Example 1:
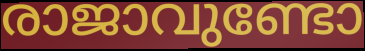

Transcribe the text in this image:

രാജാവുണ്ടോ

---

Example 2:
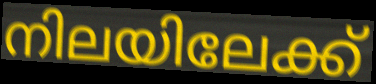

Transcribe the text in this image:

നിലയിലേക്ക്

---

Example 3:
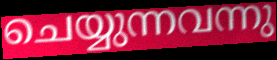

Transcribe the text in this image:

ചെയ്യുന്നവന്നു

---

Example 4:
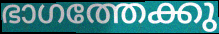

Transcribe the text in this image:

ഭാഗത്തേക്കു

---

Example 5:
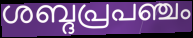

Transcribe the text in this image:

ശബ്ദപ്രപഞ്ചം